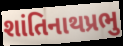
શાંતિનાથપ્રભુ